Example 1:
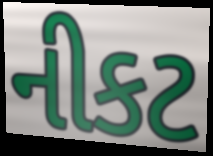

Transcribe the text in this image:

નીકટ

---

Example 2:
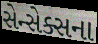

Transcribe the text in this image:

સેન્સેક્સના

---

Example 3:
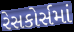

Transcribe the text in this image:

રેસકોર્સમાં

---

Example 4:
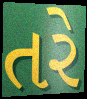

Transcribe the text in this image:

તરે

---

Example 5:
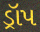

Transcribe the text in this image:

ડ્રૉપ